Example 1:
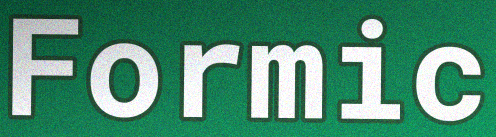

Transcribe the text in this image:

Formic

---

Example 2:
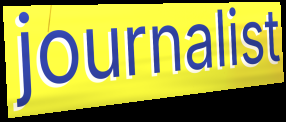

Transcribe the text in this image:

journalist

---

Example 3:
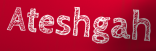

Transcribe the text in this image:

Ateshgah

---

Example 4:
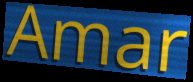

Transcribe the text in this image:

Amar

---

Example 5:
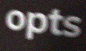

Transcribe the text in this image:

opts